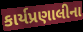
કાર્યપ્રણાલીના